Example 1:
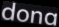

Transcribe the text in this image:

dona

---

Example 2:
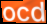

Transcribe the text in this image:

ocd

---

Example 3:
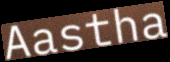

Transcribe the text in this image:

Aastha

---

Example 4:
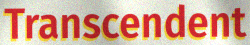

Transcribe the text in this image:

Transcendent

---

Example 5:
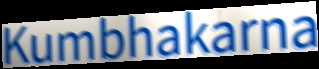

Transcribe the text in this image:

Kumbhakarna